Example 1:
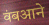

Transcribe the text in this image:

वंबआने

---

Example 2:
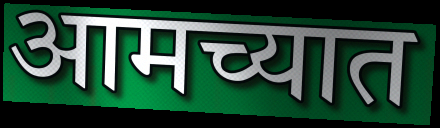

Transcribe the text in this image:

आमच्यात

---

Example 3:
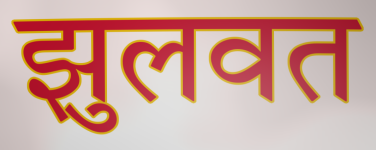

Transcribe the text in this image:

झुलवत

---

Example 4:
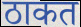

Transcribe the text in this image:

ठाकत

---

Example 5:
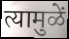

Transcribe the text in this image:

त्यामुळें